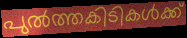
പുൽത്തകിടികൾക്ക്